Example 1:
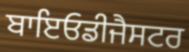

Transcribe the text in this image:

ਬਾਇਓਡੀਜੈਸਟਰ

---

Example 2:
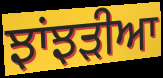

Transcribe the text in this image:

ਝਾਂਝੜੀਆ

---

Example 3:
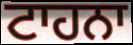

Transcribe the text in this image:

ਟਾਹਨਾ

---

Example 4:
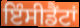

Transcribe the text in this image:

ਇੰਸੀਡੈਂਟਾਂ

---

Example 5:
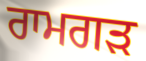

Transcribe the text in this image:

ਰਾਮਗੜ